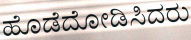
ಹೊಡೆದೋಡಿಸಿದರು